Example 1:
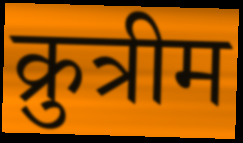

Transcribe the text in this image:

क्रुत्रीम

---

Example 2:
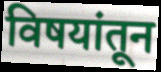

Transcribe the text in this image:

विषयांतून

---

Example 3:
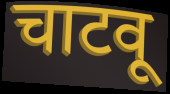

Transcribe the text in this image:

चाटवू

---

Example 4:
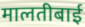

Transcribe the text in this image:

मालतीबाई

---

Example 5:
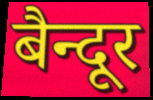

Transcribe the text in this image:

बैन्दूर